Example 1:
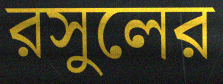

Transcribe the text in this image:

রসুলের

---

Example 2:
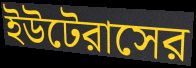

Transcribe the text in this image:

ইউটেরাসের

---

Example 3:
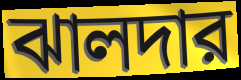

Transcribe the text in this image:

ঝালদার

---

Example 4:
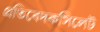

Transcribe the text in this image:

প্রতিবেদকসিলেট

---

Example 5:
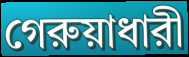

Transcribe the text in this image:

গেরুয়াধারী